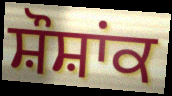
ਸ਼ੌਸ਼ਾਂਕ